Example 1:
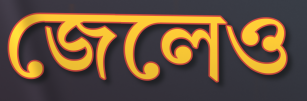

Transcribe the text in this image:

জেলেও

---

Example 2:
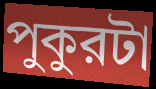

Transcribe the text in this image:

পুকুরটা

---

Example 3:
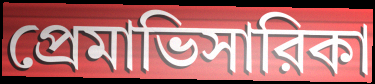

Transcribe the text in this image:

প্রেমাভিসারিকা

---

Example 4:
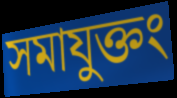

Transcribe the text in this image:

সমাযুক্তং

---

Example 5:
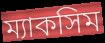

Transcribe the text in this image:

ম্যাকসিম